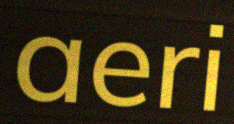
aeri